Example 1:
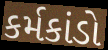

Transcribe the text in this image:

કર્મકાંડો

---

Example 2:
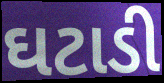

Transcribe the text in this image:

ઘટાડી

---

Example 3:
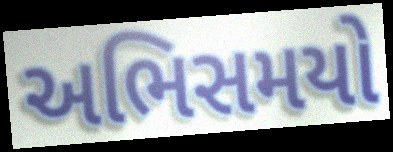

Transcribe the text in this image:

અભિસમયો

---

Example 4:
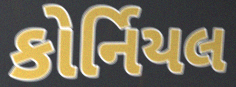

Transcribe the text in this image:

કોર્નિયલ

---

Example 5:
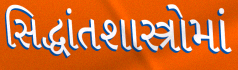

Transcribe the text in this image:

સિદ્ધાંતશાસ્ત્રોમાં